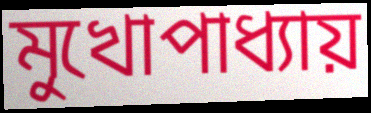
মুখোপাধ্যায়